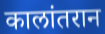
कालांतरान